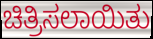
ಚಿತ್ರಿಸಲಾಯಿತು